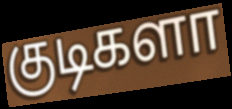
குடிகளா